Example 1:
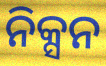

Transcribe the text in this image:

ନିକ୍ସନ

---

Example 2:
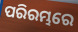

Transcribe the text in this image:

ପରିରମ୍ଭରେ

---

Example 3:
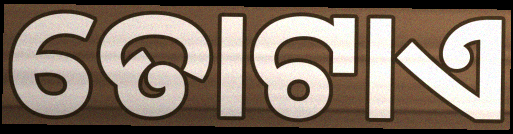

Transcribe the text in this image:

ତୋଟାଏ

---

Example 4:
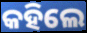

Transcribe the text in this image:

କହିଲେ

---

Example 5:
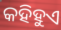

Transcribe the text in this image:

କହିହୁଏ